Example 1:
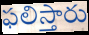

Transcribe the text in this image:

ఫలిస్తారు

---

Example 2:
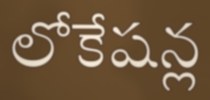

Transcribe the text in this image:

లోకేషన్ల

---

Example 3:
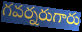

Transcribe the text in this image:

గవర్నరుగారు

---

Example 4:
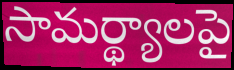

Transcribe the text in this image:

సామర్థ్యాలపై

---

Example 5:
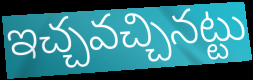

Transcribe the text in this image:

ఇచ్చవచ్చినట్టు